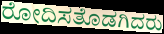
ರೋದಿಸತೊಡಗಿದರು